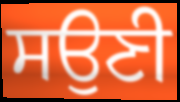
ਸਉਣੀ